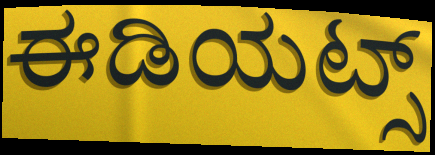
ಈಡಿಯಟ್ಸ್